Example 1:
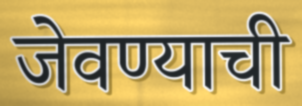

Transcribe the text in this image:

जेवण्याची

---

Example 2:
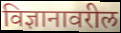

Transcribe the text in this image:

विज्ञानावरील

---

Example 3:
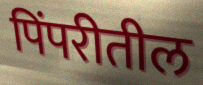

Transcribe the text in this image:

पिंपरीतील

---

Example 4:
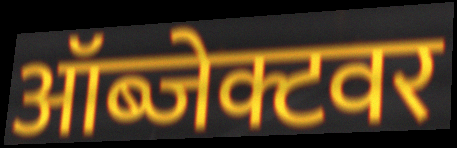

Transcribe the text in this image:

ऑब्जेक्टवर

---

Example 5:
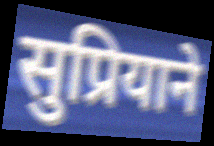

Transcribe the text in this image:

सुप्रियाने